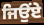
ਜਿਉਂਏ